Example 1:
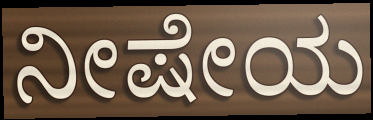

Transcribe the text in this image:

ನೀಷೇಯ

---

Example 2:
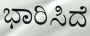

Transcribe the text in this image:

ಭಾರಿಸಿದೆ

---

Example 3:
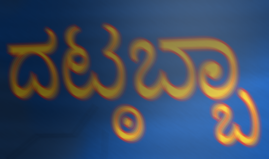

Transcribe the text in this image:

ದಟ್ಠಬ್ಬಾ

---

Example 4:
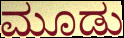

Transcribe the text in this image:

ಮೂಡು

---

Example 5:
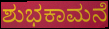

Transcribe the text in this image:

ಶುಭಕಾಮನೆ